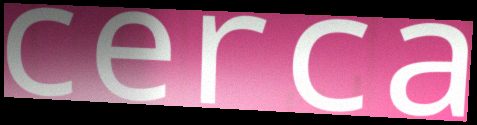
cerca